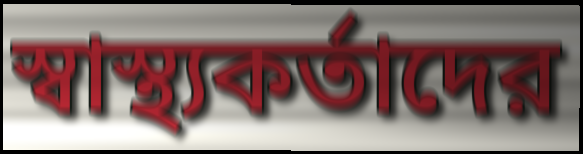
স্বাস্থ্যকর্তাদের